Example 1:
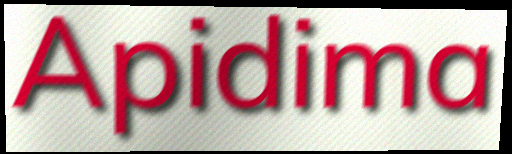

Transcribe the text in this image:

Apidima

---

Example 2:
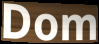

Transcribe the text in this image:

Dom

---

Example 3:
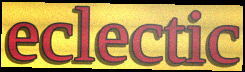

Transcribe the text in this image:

eclectic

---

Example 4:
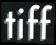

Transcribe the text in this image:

tiff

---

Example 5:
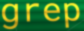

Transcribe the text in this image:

grep